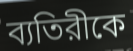
ব্যতিরীকে